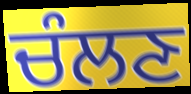
ਚੰਲਣ